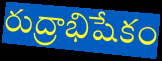
రుద్రాభిషేకం